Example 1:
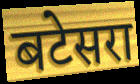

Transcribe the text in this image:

बटेसरा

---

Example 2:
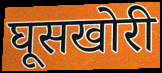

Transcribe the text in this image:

घूसखोरी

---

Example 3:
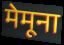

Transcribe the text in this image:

मेमूना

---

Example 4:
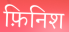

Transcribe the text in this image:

फ़िनिश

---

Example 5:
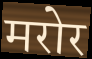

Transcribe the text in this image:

मरोर